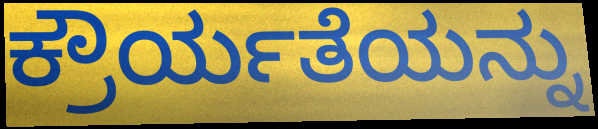
ಕ್ರೌರ್ಯತೆಯನ್ನು